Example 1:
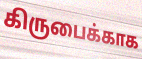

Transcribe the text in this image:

கிருபைக்காக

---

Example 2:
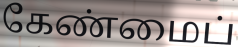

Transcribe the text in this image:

கேண்மைப்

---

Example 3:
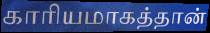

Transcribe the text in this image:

காரியமாகத்தான்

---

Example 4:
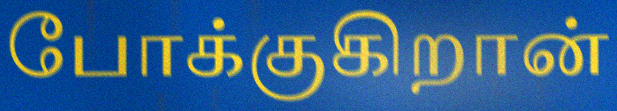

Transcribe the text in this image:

போக்குகிறான்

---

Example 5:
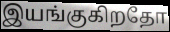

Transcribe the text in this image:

இயங்குகிறதோ